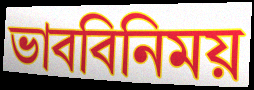
ভাববিনিময়